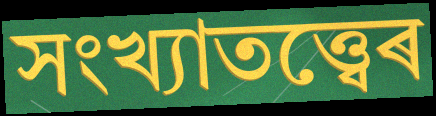
সংখ্যাতত্ত্বেৰ